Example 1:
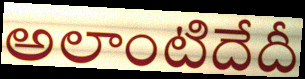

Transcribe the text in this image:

అలాంటిదేదీ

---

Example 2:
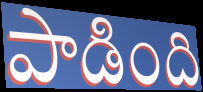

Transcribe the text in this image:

పాడింది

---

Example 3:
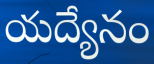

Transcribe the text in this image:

యద్యేనం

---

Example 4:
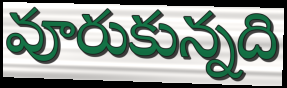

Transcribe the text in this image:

వూరుకున్నది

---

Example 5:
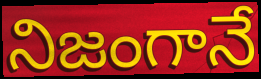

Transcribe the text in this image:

నిజంగానే